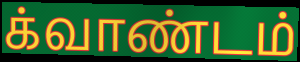
க்வாண்டம்